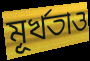
মূর্খতাও